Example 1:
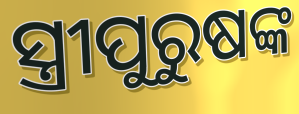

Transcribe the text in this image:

ସ୍ତ୍ରୀପୁରୁଷଙ୍କ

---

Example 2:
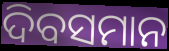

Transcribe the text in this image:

ଦିବସମାନ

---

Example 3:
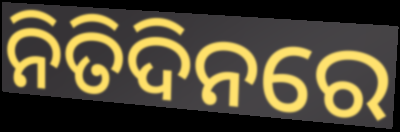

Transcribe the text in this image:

ନିତିଦିନରେ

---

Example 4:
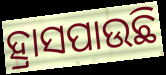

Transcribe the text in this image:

ହ୍ରାସପାଉଛି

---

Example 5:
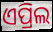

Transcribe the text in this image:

ଏପ୍ରିଲ